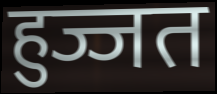
हुज्जत